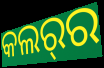
କଲର୍‌ର